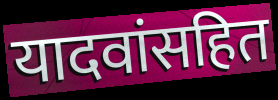
यादवांसहित